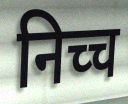
निच्च